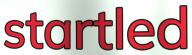
startled